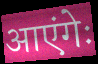
आएंगेः